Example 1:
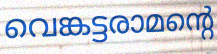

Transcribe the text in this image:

വെങ്കട്ടരാമന്റെ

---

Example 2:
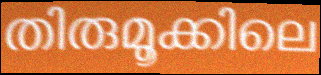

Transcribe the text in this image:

തിരുമൂക്കിലെ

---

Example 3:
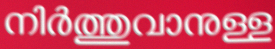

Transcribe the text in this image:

നിർത്തുവാനുള്ള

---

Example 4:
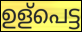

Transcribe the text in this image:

ഉള്പെട്ട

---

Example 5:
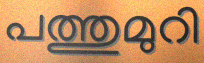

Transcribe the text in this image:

പത്തുമുറി